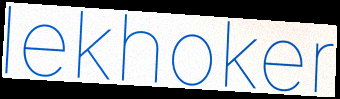
lekhoker